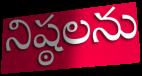
నిష్ఠలను